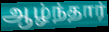
ஆழ்ந்தார்